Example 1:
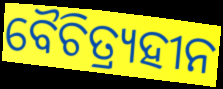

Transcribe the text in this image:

ବୈଚିତ୍ର୍ୟହୀନ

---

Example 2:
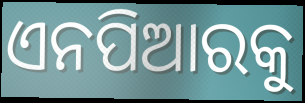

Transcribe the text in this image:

ଏନପିଆରକୁ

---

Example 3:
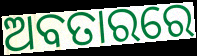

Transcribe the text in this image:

ଅବତାରରେ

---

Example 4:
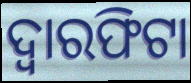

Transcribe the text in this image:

ଦ୍ୱାରଫିଟା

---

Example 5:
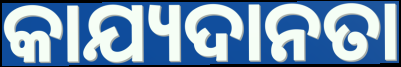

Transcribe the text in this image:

କାଯ୍ୟଦାନତା